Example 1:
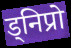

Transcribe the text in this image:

ड्निप्रो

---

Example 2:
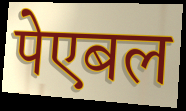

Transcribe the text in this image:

पेएबल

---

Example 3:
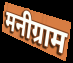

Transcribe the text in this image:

मनीग्राम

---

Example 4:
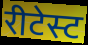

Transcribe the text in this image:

रीटेस्ट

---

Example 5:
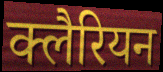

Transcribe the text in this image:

क्लैरियन